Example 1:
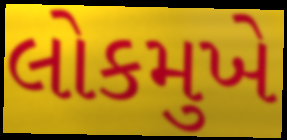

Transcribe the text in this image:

લોકમુખે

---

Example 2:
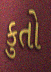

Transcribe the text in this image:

કુતો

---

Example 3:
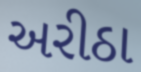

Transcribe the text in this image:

અરીઠા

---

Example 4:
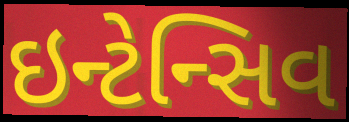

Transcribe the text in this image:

ઇન્ટેન્સિવ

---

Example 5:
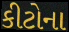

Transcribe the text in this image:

કીટોના